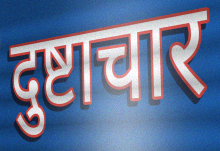
दुष्टाचार